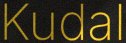
Kudal